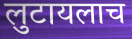
लुटायलाच